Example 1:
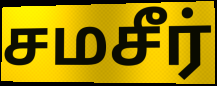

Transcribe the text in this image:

சமசீர்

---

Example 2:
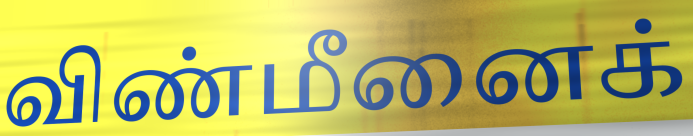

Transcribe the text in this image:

விண்மீனைக்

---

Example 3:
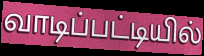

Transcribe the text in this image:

வாடிப்பட்டியில்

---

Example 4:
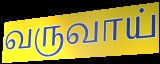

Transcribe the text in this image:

வருவாய்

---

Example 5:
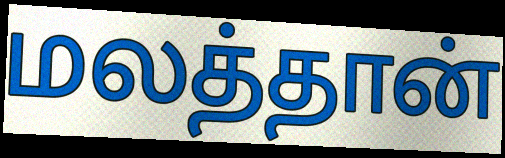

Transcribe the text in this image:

மலத்தான்